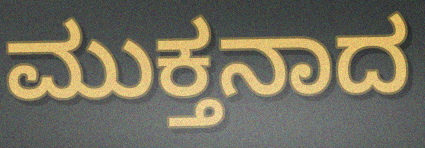
ಮುಕ್ತನಾದ